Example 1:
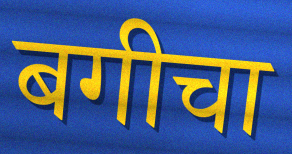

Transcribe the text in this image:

बगीचा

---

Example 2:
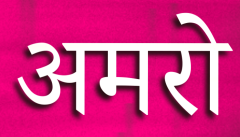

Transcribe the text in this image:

अमरो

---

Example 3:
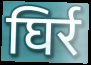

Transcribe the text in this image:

घिर्र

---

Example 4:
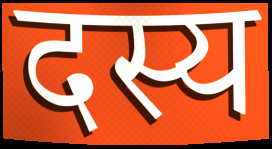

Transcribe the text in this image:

दस्य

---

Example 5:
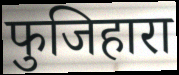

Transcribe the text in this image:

फुजिहारा